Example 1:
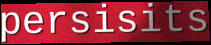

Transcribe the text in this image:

persisits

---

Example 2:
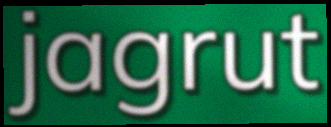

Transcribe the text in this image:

jagrut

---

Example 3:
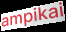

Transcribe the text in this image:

ampikai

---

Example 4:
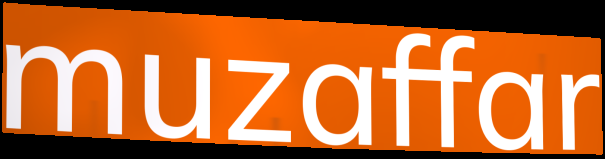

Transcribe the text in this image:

muzaffar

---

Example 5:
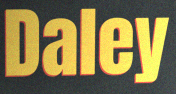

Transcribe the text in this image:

Daley